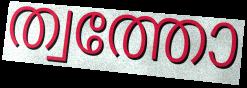
ത്വത്തോ